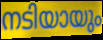
നടിയായും